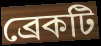
ব্রেকটি